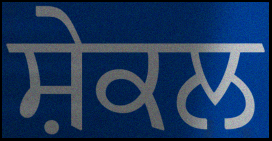
ਸ਼ੇਕਲ